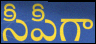
సీపీగా